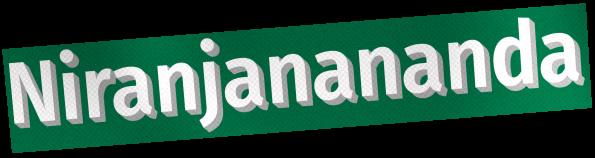
Niranjanananda